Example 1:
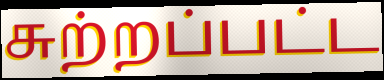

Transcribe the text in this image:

சுற்றப்பட்ட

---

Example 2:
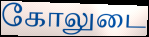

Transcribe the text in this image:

கோலுடை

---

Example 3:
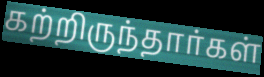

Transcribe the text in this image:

கற்றிருந்தார்கள்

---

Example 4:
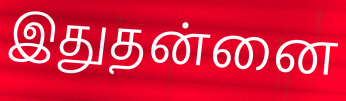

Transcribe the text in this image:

இதுதன்னை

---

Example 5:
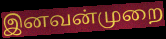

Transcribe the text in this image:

இனவன்முறை